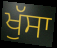
ਖੁੱਸਾ